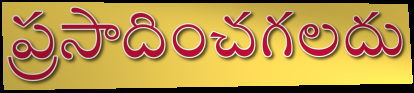
ప్రసాదించగలదు